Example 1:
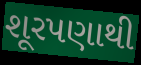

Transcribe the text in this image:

શૂરપણાથી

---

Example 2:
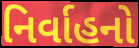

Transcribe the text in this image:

નિર્વાહનો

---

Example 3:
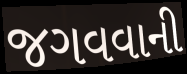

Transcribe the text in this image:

જગવવાની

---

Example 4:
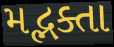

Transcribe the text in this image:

મદ્ભક્તા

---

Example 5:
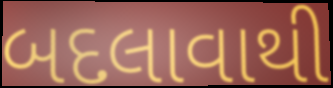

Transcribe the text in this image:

બદલાવાથી